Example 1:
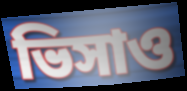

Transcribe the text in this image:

ভিসাও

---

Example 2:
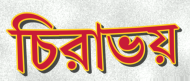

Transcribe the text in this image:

চিরাভয়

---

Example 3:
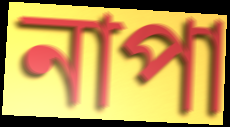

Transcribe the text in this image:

নাপা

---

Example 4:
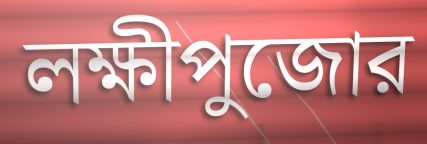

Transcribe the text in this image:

লক্ষীপুজোর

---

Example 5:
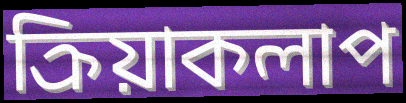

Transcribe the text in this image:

ক্রিয়াকলাপ